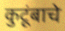
कुटूंबाचे